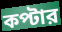
কপ্টার